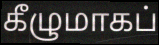
கீழுமாகப்